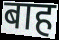
बाह